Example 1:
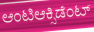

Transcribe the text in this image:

ಆಂಟಿಆಕ್ಸಿಡೆಂಟ್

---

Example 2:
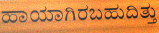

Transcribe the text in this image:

ಹಾಯಾಗಿರಬಹುದಿತ್ತು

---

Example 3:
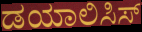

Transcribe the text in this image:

ಡಯಾಲಿಸಿಸ್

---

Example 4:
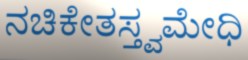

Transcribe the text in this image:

ನಚಿಕೇತಸ್ತ್ವಮೇಧಿ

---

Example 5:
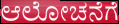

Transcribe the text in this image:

ಆಲೋಚನೆಗೆ